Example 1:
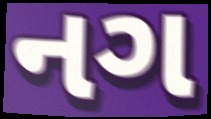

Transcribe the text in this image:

નગ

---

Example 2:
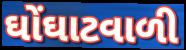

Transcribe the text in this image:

ઘોંઘાટવાળી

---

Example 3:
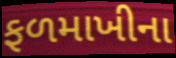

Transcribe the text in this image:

ફળમાખીના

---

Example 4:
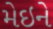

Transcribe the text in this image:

મેઇને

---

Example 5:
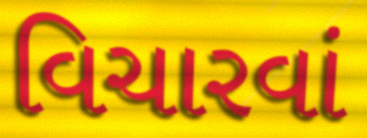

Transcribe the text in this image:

વિચારવાં